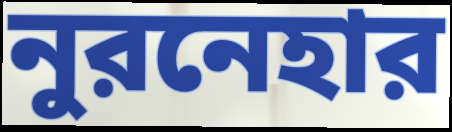
নুরনেহার